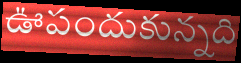
ఊపందుకున్నది